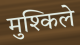
मुश्किले